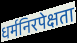
धर्मनिरपेक्षता